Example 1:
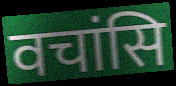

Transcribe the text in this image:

वचांसि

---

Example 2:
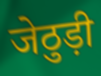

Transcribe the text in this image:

जेठुड़ी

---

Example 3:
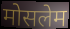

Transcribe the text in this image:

मोसलेम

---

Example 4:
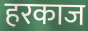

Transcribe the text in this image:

हरकाज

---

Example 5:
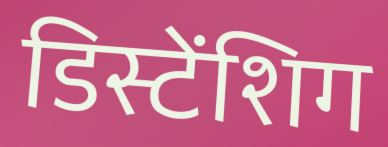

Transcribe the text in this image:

डिस्टेंशिग